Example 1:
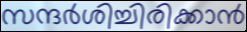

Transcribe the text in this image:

സന്ദർശിച്ചിരിക്കാൻ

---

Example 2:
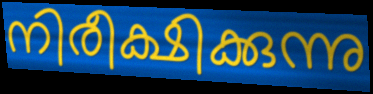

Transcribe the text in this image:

നിരീക്ഷിക്കുന്നു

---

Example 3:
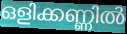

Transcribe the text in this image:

ഒളിക്കണ്ണിൽ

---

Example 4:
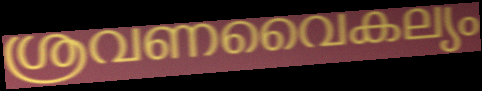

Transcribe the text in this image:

ശ്രവണവൈകല്യം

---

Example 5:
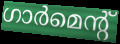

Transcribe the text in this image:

ഗാർമെന്റ്